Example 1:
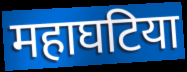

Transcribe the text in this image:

महाघटिया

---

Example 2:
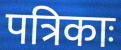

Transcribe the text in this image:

पत्रिकाः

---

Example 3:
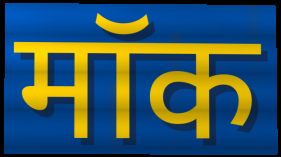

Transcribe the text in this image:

मॉक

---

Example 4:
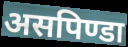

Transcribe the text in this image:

असपिण्डा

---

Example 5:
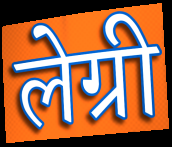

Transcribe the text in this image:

लेग्री